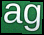
ag